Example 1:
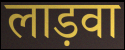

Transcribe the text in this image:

लाड़वा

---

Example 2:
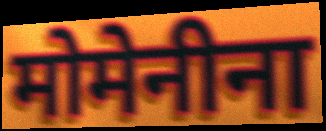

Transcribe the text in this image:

मोमेनीना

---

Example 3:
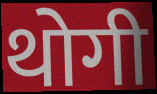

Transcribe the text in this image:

थोगी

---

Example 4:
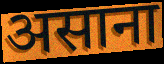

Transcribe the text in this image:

असाना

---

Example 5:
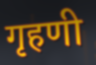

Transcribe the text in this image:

गृहणी